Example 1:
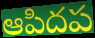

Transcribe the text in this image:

ఆపిదప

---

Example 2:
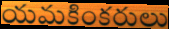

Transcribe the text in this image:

యమకింకరులు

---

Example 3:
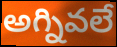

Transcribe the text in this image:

అగ్నివలే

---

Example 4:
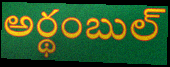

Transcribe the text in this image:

అర్థంబుల్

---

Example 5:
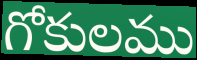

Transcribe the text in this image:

గోకులము